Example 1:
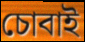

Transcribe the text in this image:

চোবাই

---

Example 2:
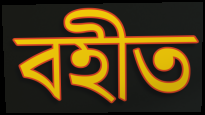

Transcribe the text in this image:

বহীত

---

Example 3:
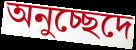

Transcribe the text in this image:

অনুচ্ছেদে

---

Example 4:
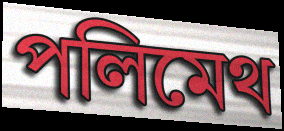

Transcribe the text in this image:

পলিমেথ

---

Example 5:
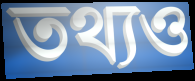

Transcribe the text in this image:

তথ্যও